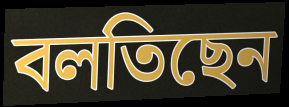
বলতিছেন